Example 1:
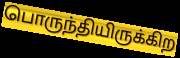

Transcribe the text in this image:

பொருந்தியிருக்கிற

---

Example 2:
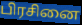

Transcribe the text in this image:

பிரசினை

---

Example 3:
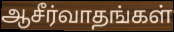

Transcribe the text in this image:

ஆசீர்வாதங்கள்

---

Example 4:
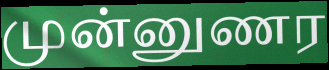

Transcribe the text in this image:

முன்னுணர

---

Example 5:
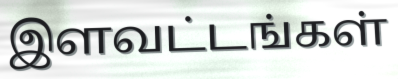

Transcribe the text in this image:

இளவட்டங்கள்